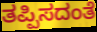
ತಪ್ಪಿಸದಂತೆ